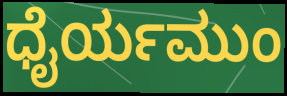
ಧೈರ್ಯಮುಂ